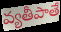
వ్యతీపాతే